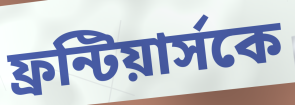
ফ্রন্টিয়ার্সকে